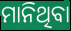
ମାନିଥିବା